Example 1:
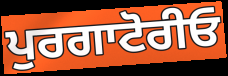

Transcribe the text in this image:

ਪੁਰਗਾਟੋਰੀਓ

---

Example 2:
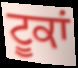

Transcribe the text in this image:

ਟੂਕਾਂ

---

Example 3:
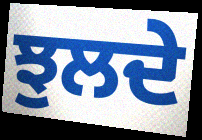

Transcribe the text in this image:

ਝੁਲਦੇ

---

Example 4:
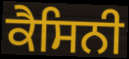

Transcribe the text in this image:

ਕੈਸਿਨੀ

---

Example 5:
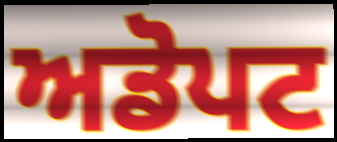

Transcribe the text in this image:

ਅਡੋਪਟ